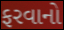
ફરવાનો